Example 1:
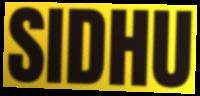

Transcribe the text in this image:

SIDHU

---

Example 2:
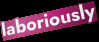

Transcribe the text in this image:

laboriously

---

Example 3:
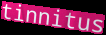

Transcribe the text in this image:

tinnitus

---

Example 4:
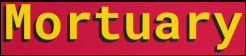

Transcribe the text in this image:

Mortuary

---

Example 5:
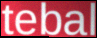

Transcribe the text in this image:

tebal